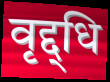
वृद्द्धि